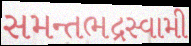
સમન્તભદ્રસ્વામી